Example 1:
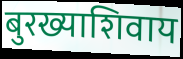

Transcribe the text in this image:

बुरख्याशिवाय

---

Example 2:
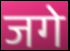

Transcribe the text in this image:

जगे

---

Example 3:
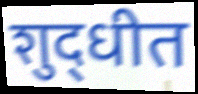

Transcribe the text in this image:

शुद्धीत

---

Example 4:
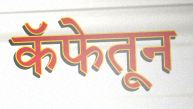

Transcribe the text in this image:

कॅफेतून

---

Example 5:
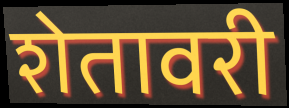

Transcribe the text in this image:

शेतावरी